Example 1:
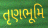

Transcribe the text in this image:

તૃણભૂમિ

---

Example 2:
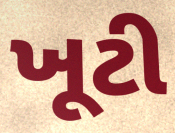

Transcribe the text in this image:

ખૂટી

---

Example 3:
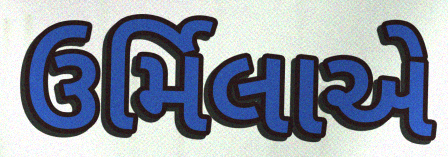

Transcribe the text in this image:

ઉર્મિલાએ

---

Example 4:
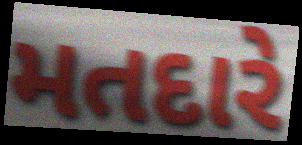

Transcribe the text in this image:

મતદારે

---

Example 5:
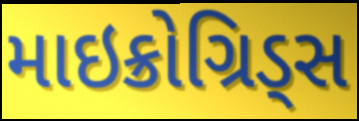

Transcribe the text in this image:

માઇક્રોગ્રિડ્સ